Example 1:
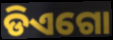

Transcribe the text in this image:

ଡିଏଗୋ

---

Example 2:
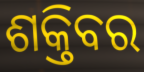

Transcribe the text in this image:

ଶକ୍ତିବର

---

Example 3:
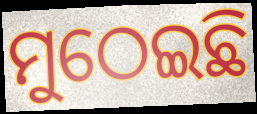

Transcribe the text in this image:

ମୁଠେଇଛି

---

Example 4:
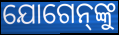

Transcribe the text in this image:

ଯୋଗେନ୍‌ଙ୍କୁ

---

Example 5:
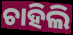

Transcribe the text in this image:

ଚାହିଲି